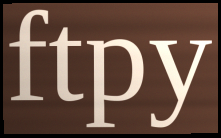
ftpy